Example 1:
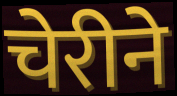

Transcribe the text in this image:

चेरीने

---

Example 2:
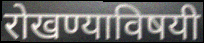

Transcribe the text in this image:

रोखण्याविषयी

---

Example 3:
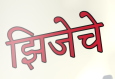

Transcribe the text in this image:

झिजेचे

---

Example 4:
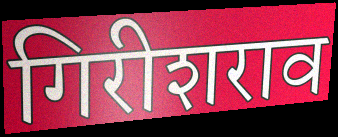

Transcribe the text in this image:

गिरीशराव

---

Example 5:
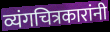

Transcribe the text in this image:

व्यंगचित्रकारांनी